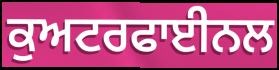
ਕੁਅਟਰਫਾਈਨਲ